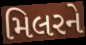
મિલરને